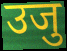
उजु